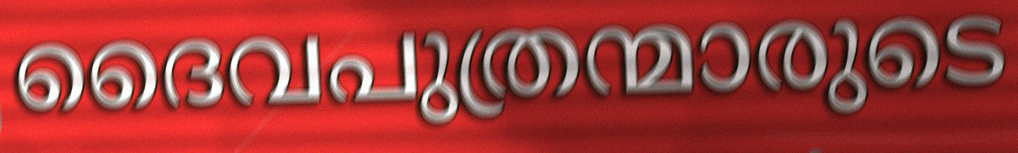
ദൈവപുത്രന്മാരുടെ